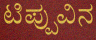
ಟಿಪ್ಪುವಿನ